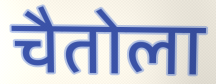
चैतोला